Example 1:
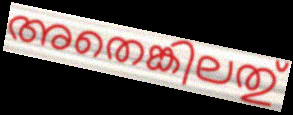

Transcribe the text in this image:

അതെങ്കിലതു്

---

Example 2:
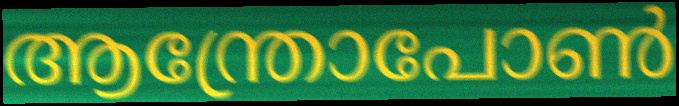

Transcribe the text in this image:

ആന്ത്രോപോൺ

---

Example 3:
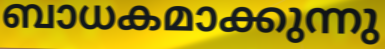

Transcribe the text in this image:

ബാധകമാക്കുന്നു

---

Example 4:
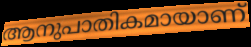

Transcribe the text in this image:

ആനുപാതികമായാണ്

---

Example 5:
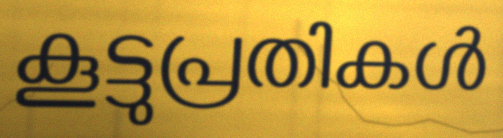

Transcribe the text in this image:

കൂട്ടുപ്രതികൾ